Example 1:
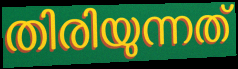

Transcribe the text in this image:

തിരിയുന്നത്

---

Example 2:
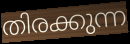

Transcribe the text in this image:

തിരക്കുന്ന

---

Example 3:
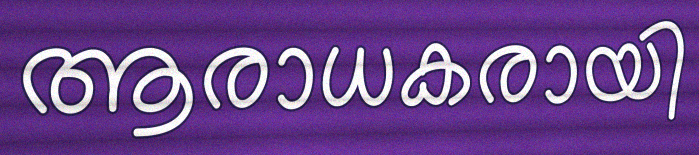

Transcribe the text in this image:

ആരാധകരായി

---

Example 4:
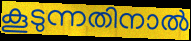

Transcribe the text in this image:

കൂടുന്നതിനാൽ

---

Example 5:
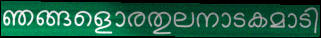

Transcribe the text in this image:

ഞങ്ങളൊരതുലനാടകമാടി